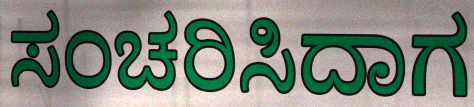
ಸಂಚರಿಸಿದಾಗ